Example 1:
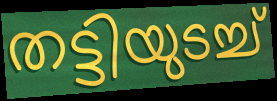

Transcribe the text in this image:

തട്ടിയുടച്ച്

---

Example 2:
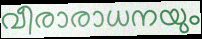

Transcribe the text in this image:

വീരാരാധനയും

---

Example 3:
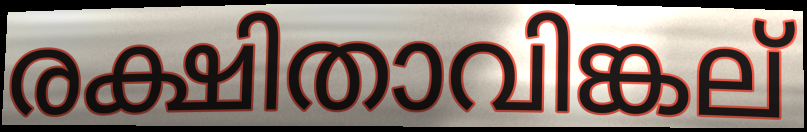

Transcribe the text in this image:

രക്ഷിതാവിങ്കല്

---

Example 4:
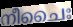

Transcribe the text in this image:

നീചൈഃ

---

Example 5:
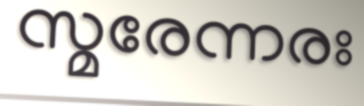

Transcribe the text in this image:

സ്മരേന്നരഃ